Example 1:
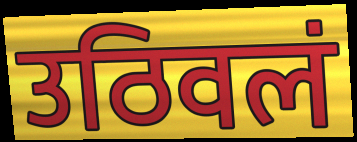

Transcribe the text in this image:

उठिवलं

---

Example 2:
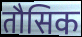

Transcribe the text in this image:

तौसिक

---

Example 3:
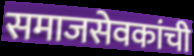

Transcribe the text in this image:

समाजसेवकांची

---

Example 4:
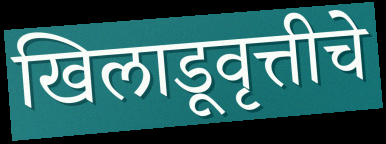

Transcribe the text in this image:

खिलाडूवृत्तीचे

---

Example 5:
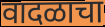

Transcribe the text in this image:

वादळाचा